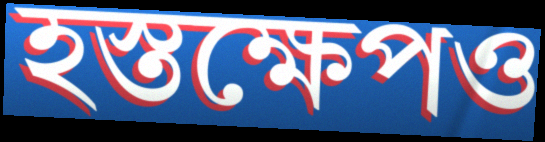
হস্তক্ষেপও